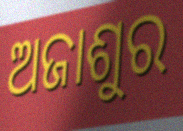
ଅଜାଶୁର